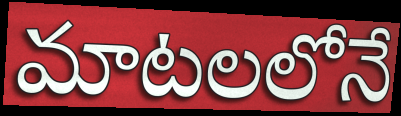
మాటలలోనే